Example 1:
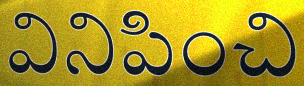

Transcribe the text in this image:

వినిపించి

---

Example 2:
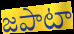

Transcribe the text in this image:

జపాటా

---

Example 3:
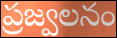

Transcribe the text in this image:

ప్రజ్వలనం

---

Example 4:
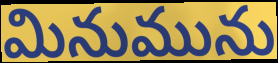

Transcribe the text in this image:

మినుమును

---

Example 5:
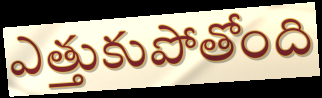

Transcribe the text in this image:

ఎత్తుకుపోతోంది